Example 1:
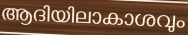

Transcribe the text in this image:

ആദിയിലാകാശവും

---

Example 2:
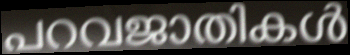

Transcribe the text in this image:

പറവജാതികൾ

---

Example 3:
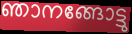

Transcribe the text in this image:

ഞാനങ്ങോട്ടു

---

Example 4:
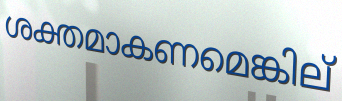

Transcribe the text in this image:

ശക്തമാകണമെങ്കില്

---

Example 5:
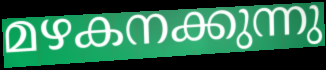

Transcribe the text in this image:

മഴകനക്കുന്നു